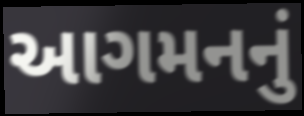
આગમનનું